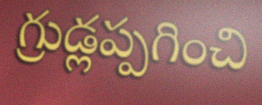
గ్రుడ్లప్పగించి